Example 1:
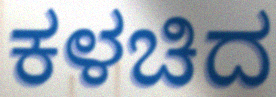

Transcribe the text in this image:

ಕಳಚಿದ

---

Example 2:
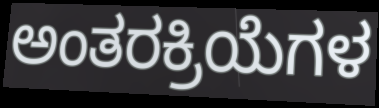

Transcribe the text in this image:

ಅಂತರಕ್ರಿಯೆಗಳ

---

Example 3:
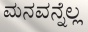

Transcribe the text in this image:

ಮನವನ್ನೆಲ್ಲ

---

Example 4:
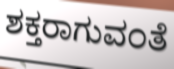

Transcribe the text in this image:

ಶಕ್ತರಾಗುವಂತೆ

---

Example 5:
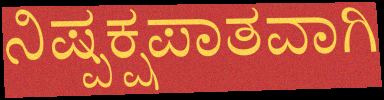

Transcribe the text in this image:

ನಿಷ್ಪಕ್ಷಪಾತವಾಗಿ